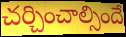
చర్చించాల్సిందే